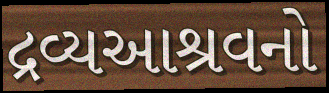
દ્રવ્યઆશ્રવનો